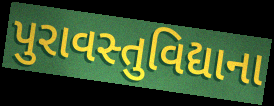
પુરાવસ્તુવિદ્યાના